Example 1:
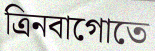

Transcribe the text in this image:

ত্রিনবাগোতে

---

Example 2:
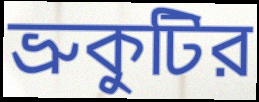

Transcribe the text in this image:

ভ্রুকুটির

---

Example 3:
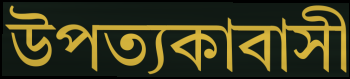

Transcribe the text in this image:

উপত্যকাবাসী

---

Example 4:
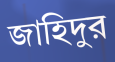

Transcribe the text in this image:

জাহিদুর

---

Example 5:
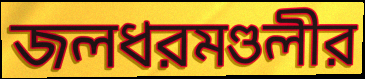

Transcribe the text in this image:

জলধরমণ্ডলীর